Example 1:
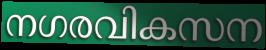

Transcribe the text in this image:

നഗരവികസന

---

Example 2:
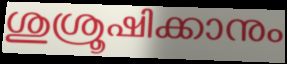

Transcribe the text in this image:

ശുശ്രൂഷിക്കാനും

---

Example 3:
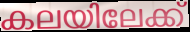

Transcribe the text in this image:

കലയിലേക്ക്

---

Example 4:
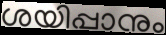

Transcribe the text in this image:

ശയിപ്പാനും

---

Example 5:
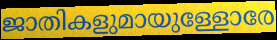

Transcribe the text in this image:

ജാതികളുമായുള്ളോരേ